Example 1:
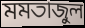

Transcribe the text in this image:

মমতাজুল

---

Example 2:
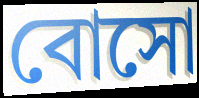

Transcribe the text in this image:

বোসো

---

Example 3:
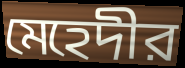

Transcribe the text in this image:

মেহেদীর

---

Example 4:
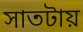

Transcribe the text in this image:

সাতটায়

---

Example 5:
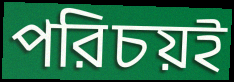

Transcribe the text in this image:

পরিচয়ই